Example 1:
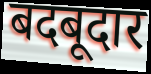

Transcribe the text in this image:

बदबूदार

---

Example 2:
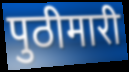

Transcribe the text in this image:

पुठीमारी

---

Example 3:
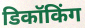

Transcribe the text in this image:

डिकॉकिंग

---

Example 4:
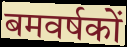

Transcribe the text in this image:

बमवर्षकों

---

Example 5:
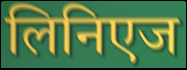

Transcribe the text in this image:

लिनिएज